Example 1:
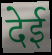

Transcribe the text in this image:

देई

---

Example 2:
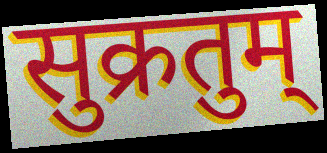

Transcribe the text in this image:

सुक्रतुम्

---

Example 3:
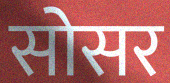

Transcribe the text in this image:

सोसर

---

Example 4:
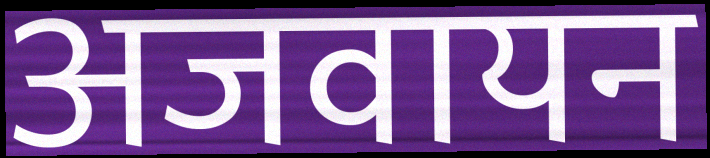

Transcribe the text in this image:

अजवायन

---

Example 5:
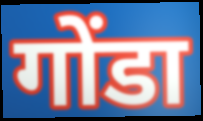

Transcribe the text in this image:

गोंडा